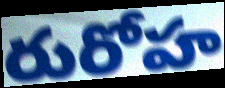
రురోహ